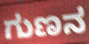
ಗುಣನ